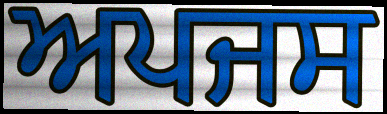
ਅਪਜਸ